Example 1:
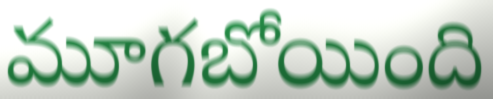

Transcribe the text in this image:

మూగబోయింది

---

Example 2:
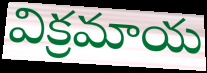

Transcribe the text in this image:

విక్రమాయ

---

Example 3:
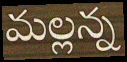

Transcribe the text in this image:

మల్లన్న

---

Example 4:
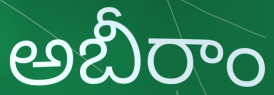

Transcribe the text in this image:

అబీరాం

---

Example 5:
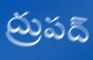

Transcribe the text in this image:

ద్రుపద్